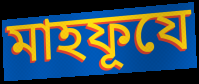
মাহফূযে